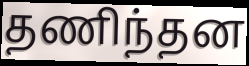
தணிந்தன